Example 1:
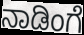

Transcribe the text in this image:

ನಾಡಿಂಗೆ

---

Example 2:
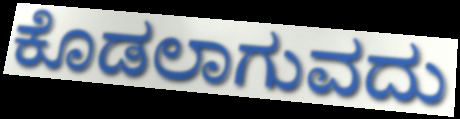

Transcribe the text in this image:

ಕೊಡಲಾಗುವದು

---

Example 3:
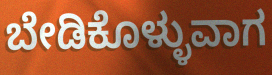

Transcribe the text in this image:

ಬೇಡಿಕೊಳ್ಳುವಾಗ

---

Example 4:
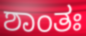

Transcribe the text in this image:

ಶಾಂತಃ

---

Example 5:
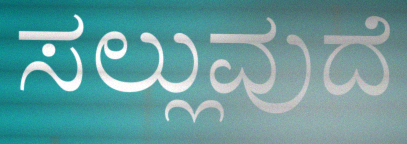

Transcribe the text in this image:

ಸಲ್ಲುವುದೆ